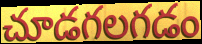
చూడగలగడం